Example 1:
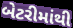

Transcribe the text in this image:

બેટરીમાંથી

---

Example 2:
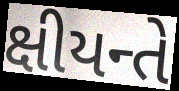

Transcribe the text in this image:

ક્ષીયન્તે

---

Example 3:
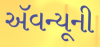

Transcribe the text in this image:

ઍવન્યૂની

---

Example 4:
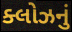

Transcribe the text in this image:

ક્લોઝનું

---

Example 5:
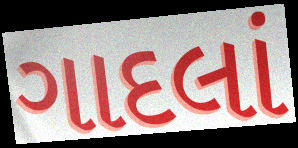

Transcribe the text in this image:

ગાદલાં